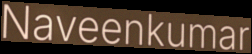
Naveenkumar